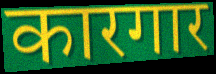
कारगार